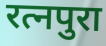
रत्नपुरा